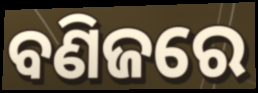
ବଣିଜରେ